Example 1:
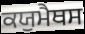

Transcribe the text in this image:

ਕਯੁਮੈਥਸ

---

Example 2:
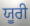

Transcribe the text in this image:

ਯੂਰੀ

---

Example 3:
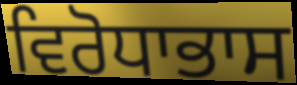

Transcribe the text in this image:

ਵਿਰੋਧਾਭਾਸ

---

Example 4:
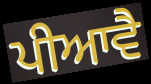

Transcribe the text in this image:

ਪੀਆਵੈ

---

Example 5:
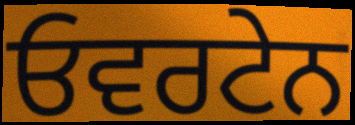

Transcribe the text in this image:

ਓਵਰਟੇਨ